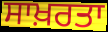
ਸਾਖ਼ਰਤਾ